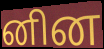
னின